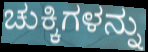
ಚುಕ್ಕಿಗಳನ್ನು